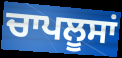
ਚਾਪਲੂਸਾਂ